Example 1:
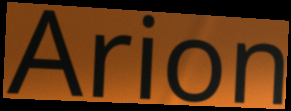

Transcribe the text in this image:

Arion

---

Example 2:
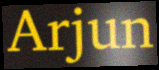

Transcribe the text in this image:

Arjun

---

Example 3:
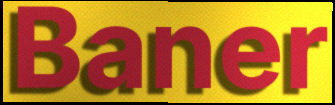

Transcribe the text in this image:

Baner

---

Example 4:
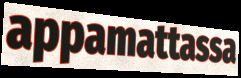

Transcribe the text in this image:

appamattassa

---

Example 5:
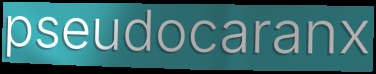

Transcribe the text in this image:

pseudocaranx